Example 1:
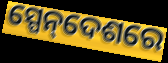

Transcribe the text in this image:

ସ୍ପେନ୍‌ଦେଶରେ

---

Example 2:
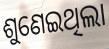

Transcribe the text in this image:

ଶୁଣେଇଥିଲା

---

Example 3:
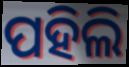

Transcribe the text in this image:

ପହିଲି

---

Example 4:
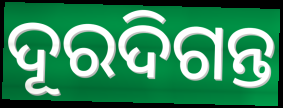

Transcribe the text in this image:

ଦୂରଦିଗନ୍ତ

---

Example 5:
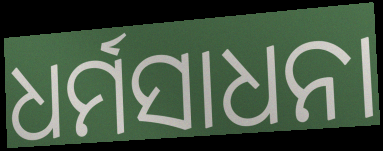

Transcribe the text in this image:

ଧର୍ମସାଧନା